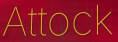
Attock